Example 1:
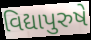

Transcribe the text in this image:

વિદ્યાપુરુષે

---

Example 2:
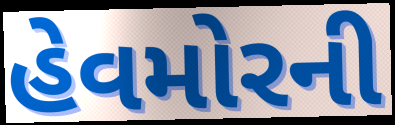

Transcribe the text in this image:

હેવમોરની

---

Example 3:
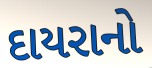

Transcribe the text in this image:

દાયરાનો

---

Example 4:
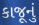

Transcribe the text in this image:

કાજૂનું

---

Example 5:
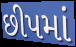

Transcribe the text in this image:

છીપમાં